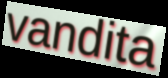
vandita